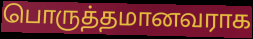
பொருத்தமானவராக